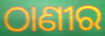
ଠାଣୀର